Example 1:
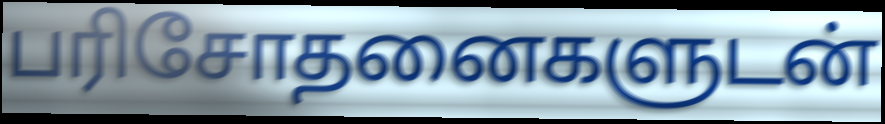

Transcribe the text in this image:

பரிசோதனைகளுடன்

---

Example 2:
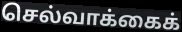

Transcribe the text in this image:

செல்வாக்கைக்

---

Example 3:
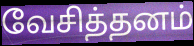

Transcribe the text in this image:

வேசித்தனம்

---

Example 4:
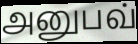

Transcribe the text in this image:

அனுபவ்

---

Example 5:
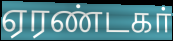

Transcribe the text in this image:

ஏரண்டகர்